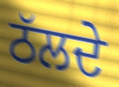
ਠੱਲਦੇ